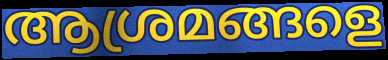
ആശ്രമങ്ങളെ